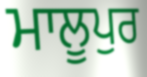
ਮਾਲੂਪੁਰ